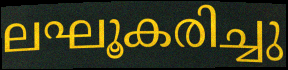
ലഘൂകരിച്ചു